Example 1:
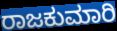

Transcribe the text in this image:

ರಾಜಕುಮಾರಿ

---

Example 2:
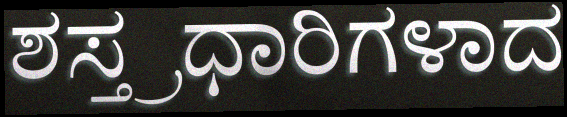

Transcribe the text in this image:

ಶಸ್ತ್ರಧಾರಿಗಳಾದ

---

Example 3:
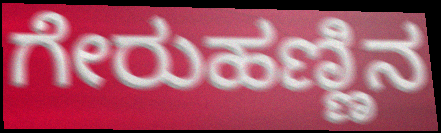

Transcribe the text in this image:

ಗೇರುಹಣ್ಣಿನ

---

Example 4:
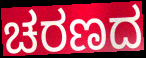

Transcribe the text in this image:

ಚರಣದ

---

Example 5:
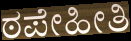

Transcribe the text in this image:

ಠಪೇಹೀತಿ